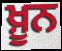
ਖ਼ੂਨ